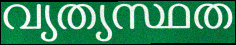
വ്യത്യസ്ഥത